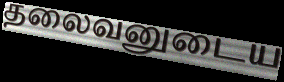
தலைவனுடைய